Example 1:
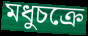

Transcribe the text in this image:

মধুচক্রে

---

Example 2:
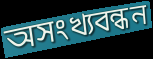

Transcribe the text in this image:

অসংখ্যবন্ধন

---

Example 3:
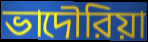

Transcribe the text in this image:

ভাদৌরিয়া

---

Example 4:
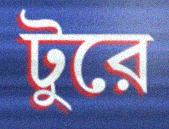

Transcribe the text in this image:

টুরে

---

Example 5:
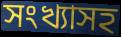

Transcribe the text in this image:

সংখ্যাসহ